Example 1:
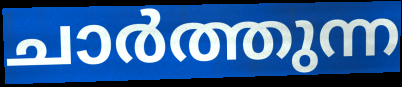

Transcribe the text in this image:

ചാർത്തുന്ന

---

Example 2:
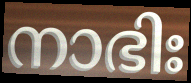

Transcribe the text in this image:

നാഭിഃ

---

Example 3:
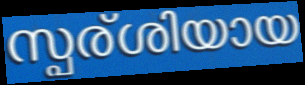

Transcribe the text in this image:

സ്പര്ശിയായ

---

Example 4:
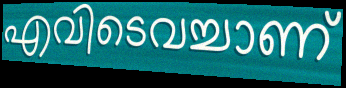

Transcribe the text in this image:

എവിടെവച്ചാണ്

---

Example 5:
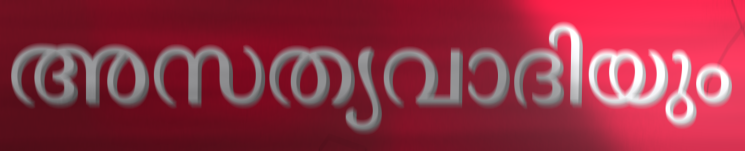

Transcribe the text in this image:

അസത്യവാദിയും